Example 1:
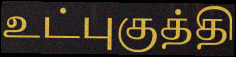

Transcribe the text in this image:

உட்புகுத்தி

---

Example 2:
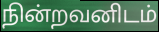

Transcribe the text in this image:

நின்றவனிடம்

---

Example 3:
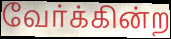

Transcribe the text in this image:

வேர்க்கின்ற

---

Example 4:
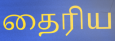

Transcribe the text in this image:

தைரிய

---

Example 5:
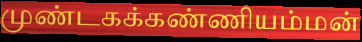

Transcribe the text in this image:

முண்டகக்கண்ணியம்மன்